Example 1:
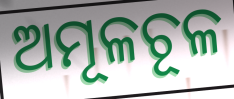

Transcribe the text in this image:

ଅମୂଳଚୂଳ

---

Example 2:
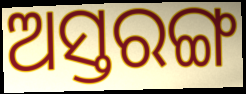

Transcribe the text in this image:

ଅସ୍ତରଙ୍ଗ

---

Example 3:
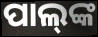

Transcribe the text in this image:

ପାଲ୍‌ଙ୍କ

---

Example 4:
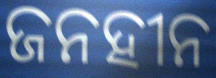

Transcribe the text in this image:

ଜନହୀନ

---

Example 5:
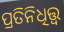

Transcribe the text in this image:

ପ୍ରତିନିଧିତ୍ତ୍ୱ